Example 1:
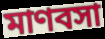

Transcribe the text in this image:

মাণবসা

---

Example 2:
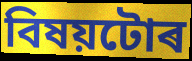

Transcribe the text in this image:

বিষয়টোৰ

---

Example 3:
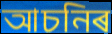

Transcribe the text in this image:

আচনিৰ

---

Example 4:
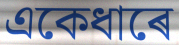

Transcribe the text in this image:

একেধাৰে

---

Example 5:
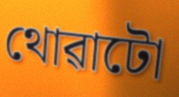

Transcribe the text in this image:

থোৱাটো